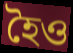
হৈও